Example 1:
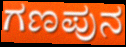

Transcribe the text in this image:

ಗಣಪುನ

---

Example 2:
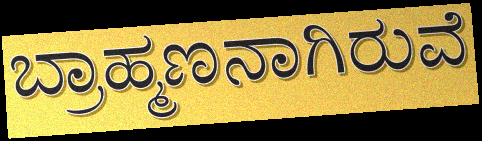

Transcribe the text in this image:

ಬ್ರಾಹ್ಮಣನಾಗಿರುವೆ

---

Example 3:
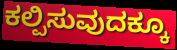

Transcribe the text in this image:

ಕಲ್ಪಿಸುವುದಕ್ಕೂ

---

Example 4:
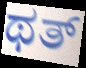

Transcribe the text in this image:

ಥತ್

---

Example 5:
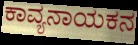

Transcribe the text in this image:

ಕಾವ್ಯನಾಯಕನ